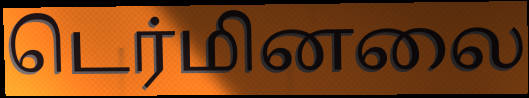
டெர்மினலை